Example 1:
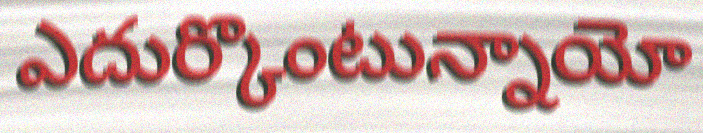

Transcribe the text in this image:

ఎదుర్కొంటున్నాయో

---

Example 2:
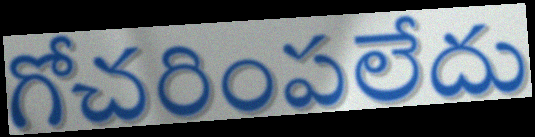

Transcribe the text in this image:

గోచరింపలేదు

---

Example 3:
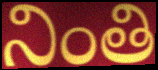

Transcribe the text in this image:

నింతి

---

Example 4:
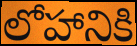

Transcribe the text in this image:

లోహానికి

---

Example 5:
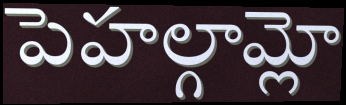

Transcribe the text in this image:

పెహల్గామ్లో